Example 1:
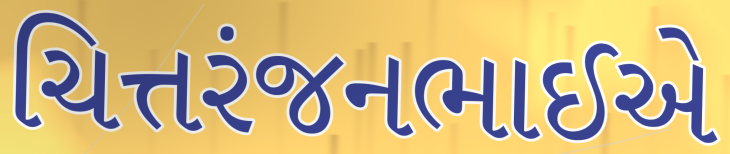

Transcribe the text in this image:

ચિત્તરંજનભાઈએ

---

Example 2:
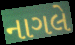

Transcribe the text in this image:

નાગલે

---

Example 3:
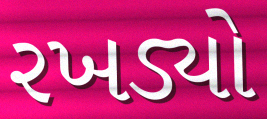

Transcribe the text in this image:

રખડ્યો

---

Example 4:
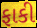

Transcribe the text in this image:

ફાકી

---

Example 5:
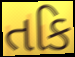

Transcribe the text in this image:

તકિ